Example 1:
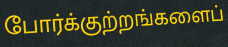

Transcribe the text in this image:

போர்க்குற்றங்களைப்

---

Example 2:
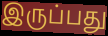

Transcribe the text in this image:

இருப்பது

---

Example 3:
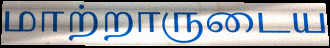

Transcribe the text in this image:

மாற்றாருடைய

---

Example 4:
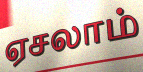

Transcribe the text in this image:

ஏசலாம்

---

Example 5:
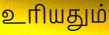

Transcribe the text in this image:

உரியதும்